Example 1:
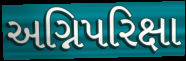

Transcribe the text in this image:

અગ્નિપરિક્ષા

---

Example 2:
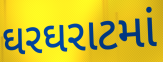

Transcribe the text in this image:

ઘરઘરાટમાં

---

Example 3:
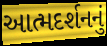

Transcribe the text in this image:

આત્મદર્શનનું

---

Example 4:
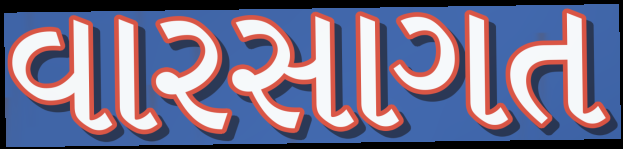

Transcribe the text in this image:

વારસાગત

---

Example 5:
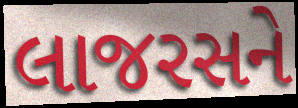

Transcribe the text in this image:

લાજરસને